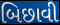
બિછાવી